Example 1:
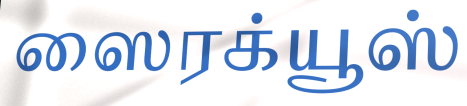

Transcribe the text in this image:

ஸைரக்யூஸ்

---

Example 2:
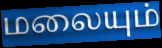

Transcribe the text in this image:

மலையும்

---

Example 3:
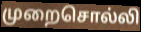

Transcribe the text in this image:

முறைசொல்லி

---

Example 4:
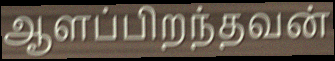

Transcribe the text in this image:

ஆளப்பிறந்தவன்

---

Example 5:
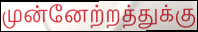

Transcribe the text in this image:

முன்னேற்றத்துக்கு